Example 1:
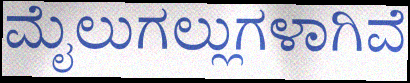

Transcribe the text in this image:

ಮೈಲುಗಲ್ಲುಗಳಾಗಿವೆ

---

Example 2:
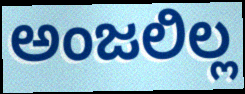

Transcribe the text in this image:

ಅಂಜಲಿಲ್ಲ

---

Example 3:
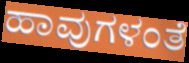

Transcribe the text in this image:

ಹಾವುಗಳಂತೆ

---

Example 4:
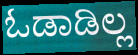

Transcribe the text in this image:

ಓಡಾಡಿಲ್ಲ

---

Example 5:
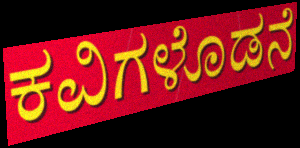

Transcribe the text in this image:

ಕವಿಗಳೊಡನೆ